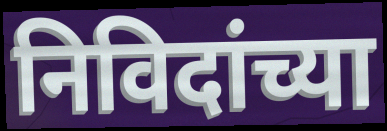
निविदांच्या